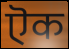
ऎक